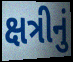
ક્ષત્રીનું